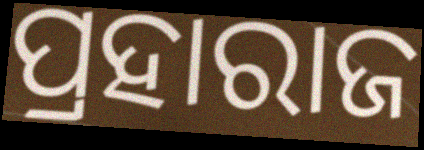
ପ୍ରହାରାଜ